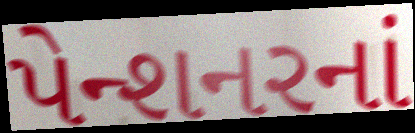
પેન્શનરનાં